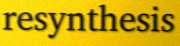
resynthesis